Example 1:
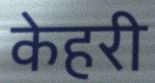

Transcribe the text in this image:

केहरी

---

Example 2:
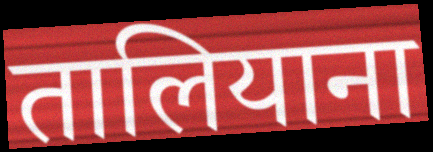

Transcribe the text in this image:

तालियाना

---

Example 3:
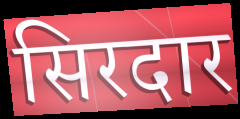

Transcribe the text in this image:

सिरदार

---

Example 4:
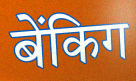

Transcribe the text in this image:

बेंकिग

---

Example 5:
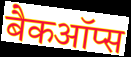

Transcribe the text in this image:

बैकऑप्स